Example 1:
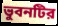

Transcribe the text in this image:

ভুবনটির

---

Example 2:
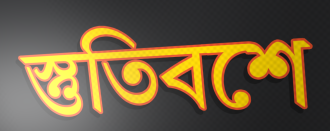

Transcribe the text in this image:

স্তুতিবশে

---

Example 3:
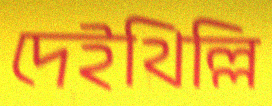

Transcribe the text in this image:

দেইথিল্লি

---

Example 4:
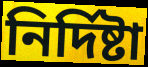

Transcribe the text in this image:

নির্দিষ্টা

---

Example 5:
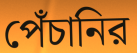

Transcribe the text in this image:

পেঁচানির